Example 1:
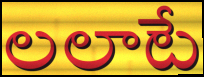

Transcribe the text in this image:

లలాటే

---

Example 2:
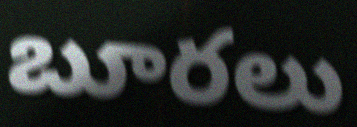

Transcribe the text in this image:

బూరలు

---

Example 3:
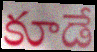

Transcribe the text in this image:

కూడే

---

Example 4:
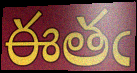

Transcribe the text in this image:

ఈతఁ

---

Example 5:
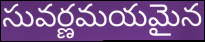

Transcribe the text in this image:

సువర్ణమయమైన